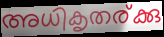
അധികൃതര്ക്കു